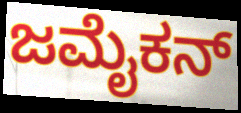
ಜಮೈಕನ್